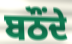
ਬਠੌਂਦੇ